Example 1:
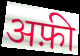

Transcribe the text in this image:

अफ़ी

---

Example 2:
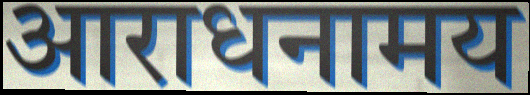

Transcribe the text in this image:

आराधनामय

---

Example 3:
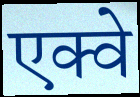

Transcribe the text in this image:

एक्वे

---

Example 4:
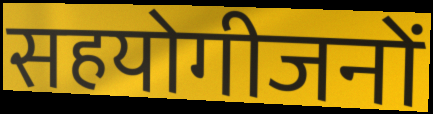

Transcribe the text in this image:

सहयोगीजनों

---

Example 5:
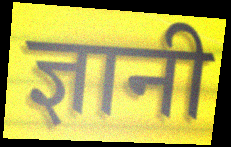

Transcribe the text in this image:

ज्ञानी